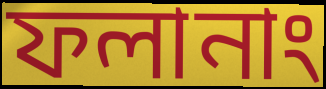
ফলানাং